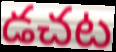
డచట